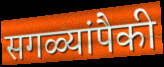
सगळ्यांपैकी